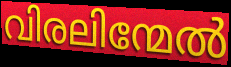
വിരലിന്മേൽ